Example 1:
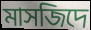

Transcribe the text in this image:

মাসজিদে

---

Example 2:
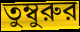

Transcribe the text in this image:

তুম্বুরুর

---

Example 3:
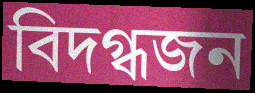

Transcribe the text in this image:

বিদগ্ধজন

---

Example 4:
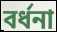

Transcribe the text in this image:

বর্ধনা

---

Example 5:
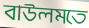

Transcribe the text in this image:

বাউলমতে